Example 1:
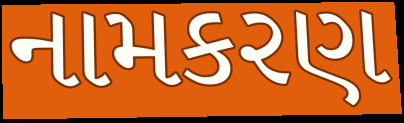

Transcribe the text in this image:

નામકરણ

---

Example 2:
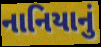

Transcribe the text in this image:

નાનિયાનું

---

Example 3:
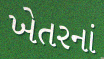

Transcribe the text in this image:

ખેતરનાં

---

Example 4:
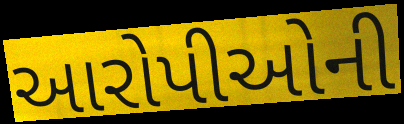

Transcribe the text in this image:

આરોપીઓની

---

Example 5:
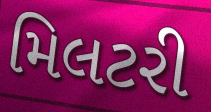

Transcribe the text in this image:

મિલટરી